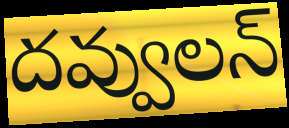
దవ్వులన్